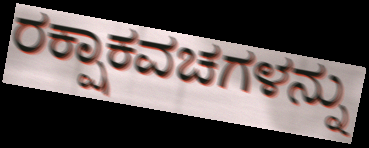
ರಕ್ಷಾಕವಚಗಳನ್ನು